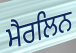
ਮੈਰਲਿਨ